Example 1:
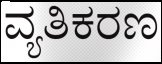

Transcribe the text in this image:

ವ್ಯತಿಕರಣ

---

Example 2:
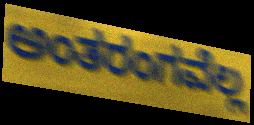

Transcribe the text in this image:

ಅಂತರಂಗವೆಲ್ಲ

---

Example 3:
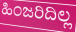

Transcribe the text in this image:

ಹಿಂಜರಿದಿಲ್ಲ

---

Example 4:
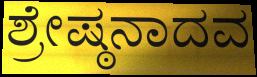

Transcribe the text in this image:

ಶ್ರೇಷ್ಠನಾದವ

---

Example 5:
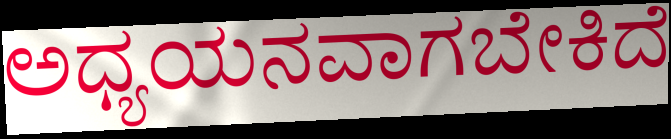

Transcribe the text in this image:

ಅಧ್ಯಯನವಾಗಬೇಕಿದೆ